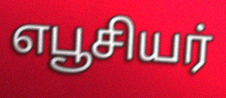
எபூசியர்